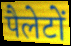
पैलेटों